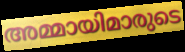
അമ്മായിമാരുടെ